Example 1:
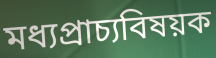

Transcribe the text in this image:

মধ্যপ্রাচ্যবিষয়ক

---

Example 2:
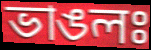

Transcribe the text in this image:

ভাঙলঃ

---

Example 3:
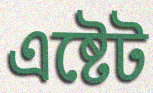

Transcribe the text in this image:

এষ্টেট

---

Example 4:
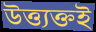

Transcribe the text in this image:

উত্ত্যক্তই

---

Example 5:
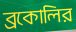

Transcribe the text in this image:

ব্রকোলির